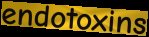
endotoxins